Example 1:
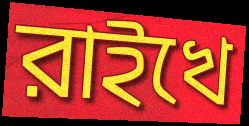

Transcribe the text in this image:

রাইখে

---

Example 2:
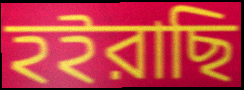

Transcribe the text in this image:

হইরাছি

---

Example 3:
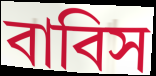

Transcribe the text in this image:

বাবিস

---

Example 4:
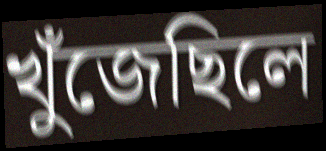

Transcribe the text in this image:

খুঁজেছিলে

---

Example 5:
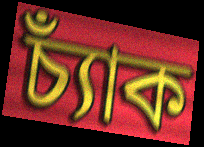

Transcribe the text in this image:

চ্যাঁক